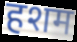
हशम